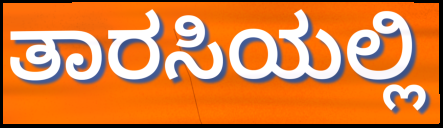
ತಾರಸಿಯಲ್ಲಿ